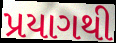
પ્રયાગથી